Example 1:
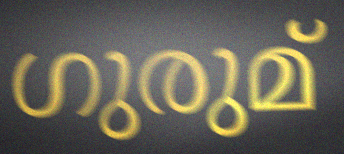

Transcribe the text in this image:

ഗുരുമ്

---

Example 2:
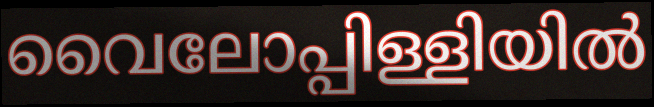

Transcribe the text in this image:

വൈലോപ്പിള്ളിയിൽ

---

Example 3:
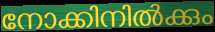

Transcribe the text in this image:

നോക്കിനിൽക്കും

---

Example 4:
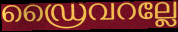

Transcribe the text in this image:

ഡ്രൈവറല്ലേ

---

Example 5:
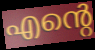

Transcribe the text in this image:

എന്റെ